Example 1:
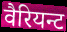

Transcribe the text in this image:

वैरियन्ट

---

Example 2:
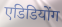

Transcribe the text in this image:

एडिडियोंग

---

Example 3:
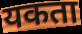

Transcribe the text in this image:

यकता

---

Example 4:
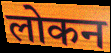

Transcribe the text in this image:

लोकन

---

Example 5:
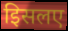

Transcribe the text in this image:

इिसलए